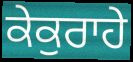
ਕੇਕੁਰਾਹੇ